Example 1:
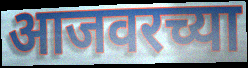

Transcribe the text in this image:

आजवरच्या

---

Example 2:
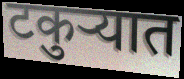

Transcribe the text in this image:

टकुऱ्यात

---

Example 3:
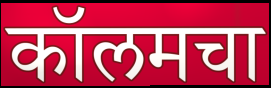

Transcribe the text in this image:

कॉलमचा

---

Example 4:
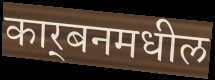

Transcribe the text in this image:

कार्बनमधील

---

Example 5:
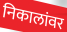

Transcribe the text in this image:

निकालांवर